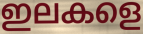
ഇലകളെ